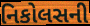
નિકોલસની